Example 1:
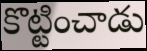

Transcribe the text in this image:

కొట్టించాడు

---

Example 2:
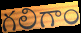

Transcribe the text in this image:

గలిగాం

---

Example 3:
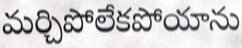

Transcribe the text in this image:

మర్చిపోలేకపోయాను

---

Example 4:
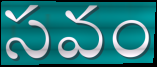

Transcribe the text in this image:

సవం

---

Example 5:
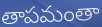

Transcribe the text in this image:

తాపమంతా